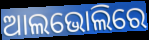
ଆଲଭୋଲିରେ